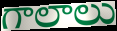
గాలాలు